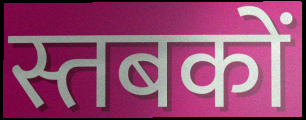
स्तबकों